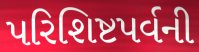
પરિશિષ્ટપર્વની